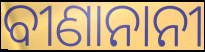
ବୀଣାନାନୀ